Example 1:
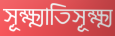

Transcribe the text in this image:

সূক্ষ্মাতিসূক্ষ্ম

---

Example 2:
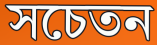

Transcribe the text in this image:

সচেতন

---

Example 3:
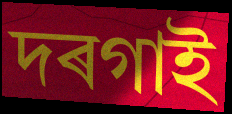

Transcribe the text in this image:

দৰগাই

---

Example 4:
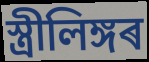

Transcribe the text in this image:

স্ত্ৰীলিঙ্গৰ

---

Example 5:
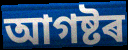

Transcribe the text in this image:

আগষ্টৰ